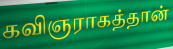
கவிஞராகத்தான்